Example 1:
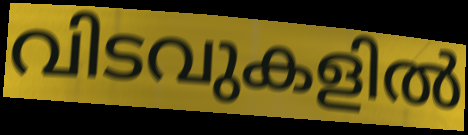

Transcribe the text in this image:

വിടവുകളിൽ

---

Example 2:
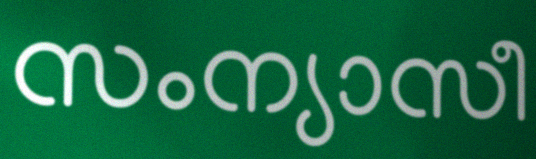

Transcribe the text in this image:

സംന്യാസീ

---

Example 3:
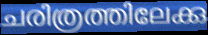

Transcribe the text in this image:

ചരിത്രത്തിലേക്കു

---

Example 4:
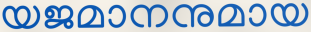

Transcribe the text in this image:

യജമാനനുമായ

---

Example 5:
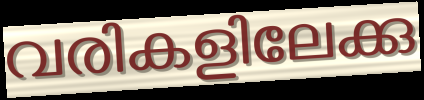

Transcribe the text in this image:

വരികളിലേക്കു